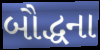
બૌદ્ધના